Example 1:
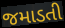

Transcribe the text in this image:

જમાડતી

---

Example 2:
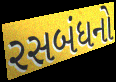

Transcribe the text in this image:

રસબંધનો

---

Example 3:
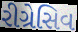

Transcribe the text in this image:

રીગ્રેસિવ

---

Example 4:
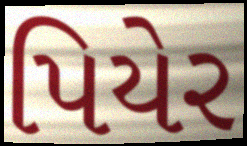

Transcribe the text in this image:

પિયેર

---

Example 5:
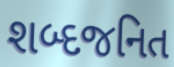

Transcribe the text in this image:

શબ્દજનિત